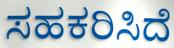
ಸಹಕರಿಸಿದೆ